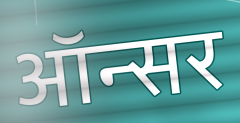
ऑन्सर